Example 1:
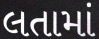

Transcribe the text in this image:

લતામાં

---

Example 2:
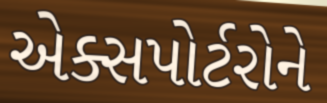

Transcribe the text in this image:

એક્સપોર્ટરોને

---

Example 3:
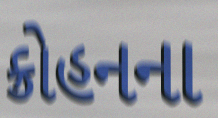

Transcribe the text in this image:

ક્રોહનના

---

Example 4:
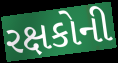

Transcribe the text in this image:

રક્ષકોની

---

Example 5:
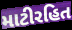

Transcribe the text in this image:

માટીરહિત